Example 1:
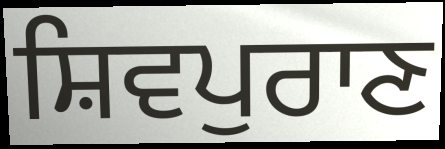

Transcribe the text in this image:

ਸ਼ਿਵਪੁਰਾਣ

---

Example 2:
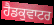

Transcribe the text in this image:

ਹੈਡਕੁਵਾਟਰ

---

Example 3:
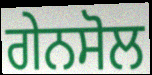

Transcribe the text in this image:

ਗੇਨਸੋਲ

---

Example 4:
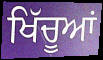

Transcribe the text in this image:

ਖਿੱਚੂਆਂ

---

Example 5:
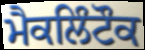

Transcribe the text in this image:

ਮੈਕਲਿੰਟੌਕ